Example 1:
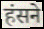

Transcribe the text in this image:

हंसने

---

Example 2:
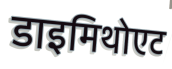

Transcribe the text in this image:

डाइमिथोएट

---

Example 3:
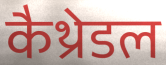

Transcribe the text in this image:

कैथ्रेडल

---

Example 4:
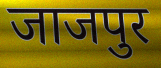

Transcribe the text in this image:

जाजपुर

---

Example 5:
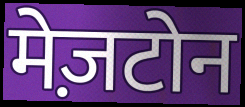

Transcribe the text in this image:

मेज़टोन